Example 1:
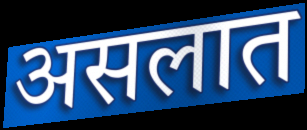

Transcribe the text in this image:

असलात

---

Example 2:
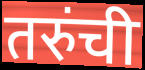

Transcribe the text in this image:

तरुंची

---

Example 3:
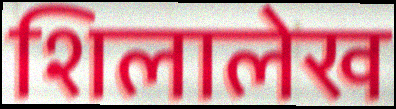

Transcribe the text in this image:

शिलालेख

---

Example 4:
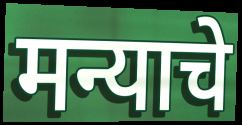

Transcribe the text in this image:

मन्याचे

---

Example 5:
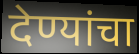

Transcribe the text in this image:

देण्यांचा